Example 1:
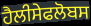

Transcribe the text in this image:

ਹੈਲੀਸੇਫਲੋਬਸ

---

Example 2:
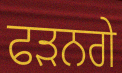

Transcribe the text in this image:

ਫੜਨਗੇ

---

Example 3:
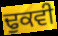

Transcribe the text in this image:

ਢੁਕਵੀ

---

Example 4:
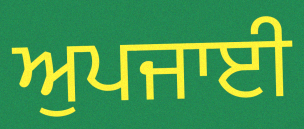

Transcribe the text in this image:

ਅੁਪਜਾਈ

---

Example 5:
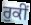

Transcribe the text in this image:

ਰੁਕੀਂ